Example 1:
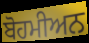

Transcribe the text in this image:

ਬੋਹਮੀਅਨ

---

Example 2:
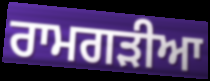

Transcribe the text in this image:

ਰਾਮਗੜੀਆ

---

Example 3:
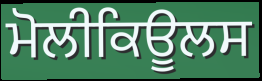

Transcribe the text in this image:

ਮੋਲੀਕਿਊਲਸ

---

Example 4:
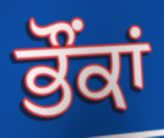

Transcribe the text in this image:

ਭੌਂਕਾਂ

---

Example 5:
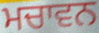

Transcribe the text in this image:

ਮਚਾਵਨ